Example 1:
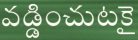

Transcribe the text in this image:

వడ్డించుటకై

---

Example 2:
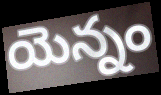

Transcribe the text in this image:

యెన్నం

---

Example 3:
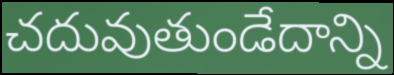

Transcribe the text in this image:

చదువుతుండేదాన్ని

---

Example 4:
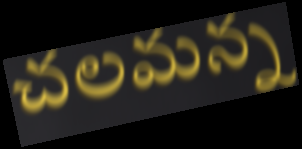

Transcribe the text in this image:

చలమన్న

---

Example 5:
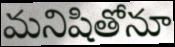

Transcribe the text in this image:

మనిషితోనూ